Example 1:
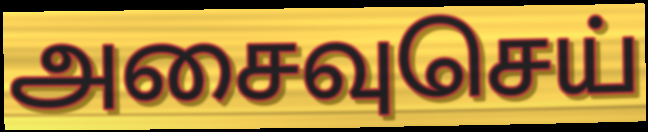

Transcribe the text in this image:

அசைவுசெய்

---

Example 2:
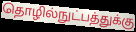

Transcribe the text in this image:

தொழில்நுட்பத்துக்கு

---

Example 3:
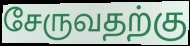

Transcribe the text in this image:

சேருவதற்கு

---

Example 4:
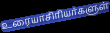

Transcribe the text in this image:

உரையாசிரியர்களுள்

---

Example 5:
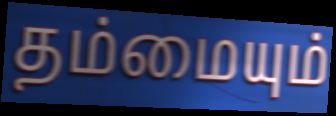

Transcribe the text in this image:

தம்மையும்